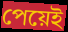
পেয়েই